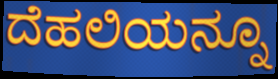
ದೆಹಲಿಯನ್ನೂ